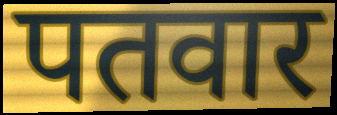
पतवार